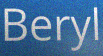
Beryl